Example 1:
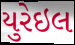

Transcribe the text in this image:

યુરેઇલ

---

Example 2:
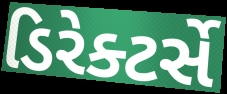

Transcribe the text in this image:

ડિરેક્ટર્સે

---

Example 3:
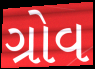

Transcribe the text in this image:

ગ્રોવ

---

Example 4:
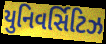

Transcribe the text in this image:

યુનિવર્સિટિઝ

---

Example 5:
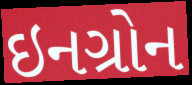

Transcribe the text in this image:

ઇનગ્રોન